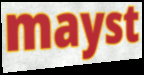
mayst